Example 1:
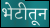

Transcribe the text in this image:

भेटीतून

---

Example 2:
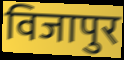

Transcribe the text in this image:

विजापुर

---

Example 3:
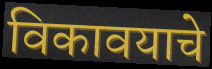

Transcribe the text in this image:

विकावयाचे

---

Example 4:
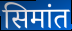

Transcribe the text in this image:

सिमांत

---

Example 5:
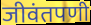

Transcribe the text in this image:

जीवंतपणी